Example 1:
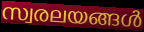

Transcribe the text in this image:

സ്വരലയങ്ങൾ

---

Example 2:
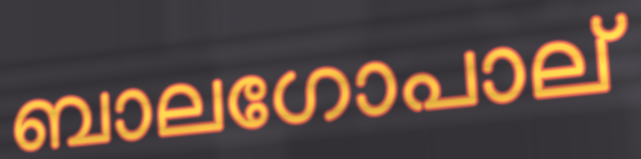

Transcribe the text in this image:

ബാലഗോപാല്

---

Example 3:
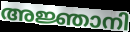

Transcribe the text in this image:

അജ്ഞാനി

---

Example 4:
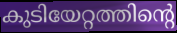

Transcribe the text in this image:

കുടിയേറ്റത്തിന്റെ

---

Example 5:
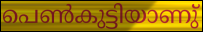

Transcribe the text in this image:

പെൺകുട്ടിയാണു്